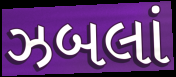
ઝબલાં